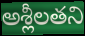
అశ్లీలతని